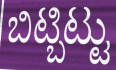
ಬಿಟ್ಬಿಟ್ಟು